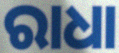
ରାଧା